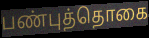
பண்புத்தொகை